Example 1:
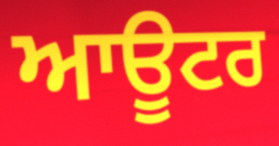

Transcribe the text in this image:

ਆਊਟਰ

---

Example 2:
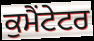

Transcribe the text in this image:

ਕੁਮੈਂਟੇਟਰ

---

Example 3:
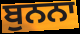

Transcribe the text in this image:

ਬੁਨਨਾ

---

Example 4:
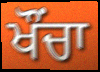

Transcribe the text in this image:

ਖੌੰਚਾ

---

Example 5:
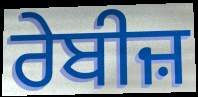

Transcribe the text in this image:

ਰੇਬੀਜ਼